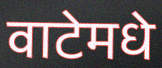
वाटेमधे